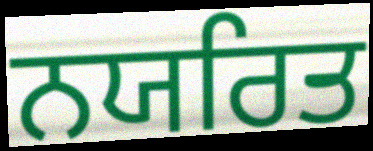
ਨਯਰਿਤ